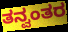
ತನ್ವಂತರ